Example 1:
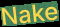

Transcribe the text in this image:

Nake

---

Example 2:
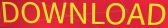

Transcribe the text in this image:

DOWNLOAD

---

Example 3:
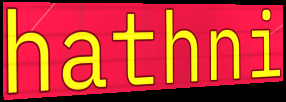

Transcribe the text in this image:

hathni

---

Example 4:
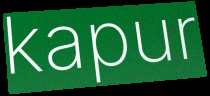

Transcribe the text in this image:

kapur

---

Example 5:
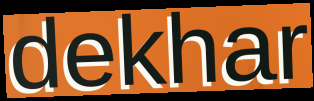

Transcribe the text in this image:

dekhar